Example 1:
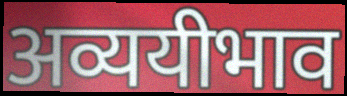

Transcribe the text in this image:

अव्ययीभाव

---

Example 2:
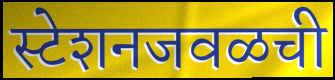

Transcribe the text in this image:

स्टेशनजवळची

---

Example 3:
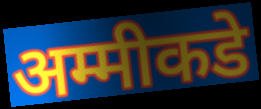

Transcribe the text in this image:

अम्मीकडे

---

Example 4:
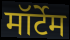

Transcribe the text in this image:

मॉर्टेम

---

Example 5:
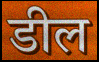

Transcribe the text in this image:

डील